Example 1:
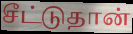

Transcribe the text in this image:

சீட்டுதான்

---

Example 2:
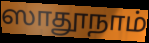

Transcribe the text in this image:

ஸாதூநாம்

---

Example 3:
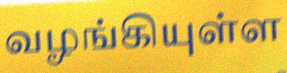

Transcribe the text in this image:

வழங்கியுள்ள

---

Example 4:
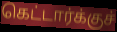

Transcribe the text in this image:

கெட்டார்க்குச்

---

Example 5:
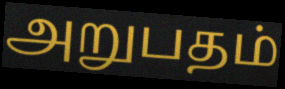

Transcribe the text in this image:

அறுபதம்